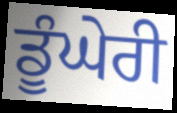
ਡੂੰਘੇਰੀ